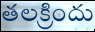
తలక్రిందు